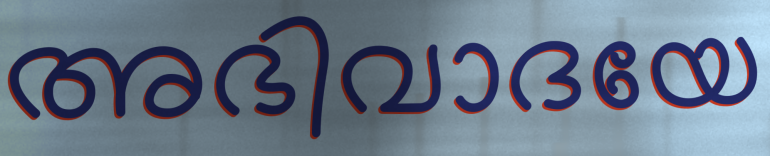
അഭിവാദയേ